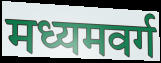
मध्यमवर्ग